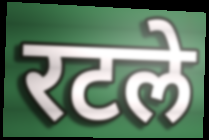
रटले